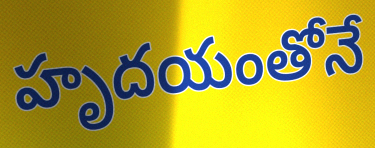
హృదయంతోనే